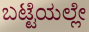
ಬಟ್ಟೆಯಲ್ಲೇ